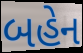
બહેન